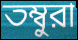
তম্বুরা